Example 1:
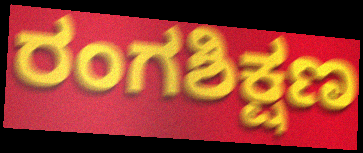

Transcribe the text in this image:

ರಂಗಶಿಕ್ಷಣ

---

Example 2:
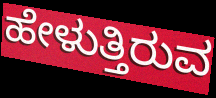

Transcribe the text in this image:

ಹೇಳುತ್ತಿರುವ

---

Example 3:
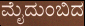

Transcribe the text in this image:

ಮೈದುಂಬಿದ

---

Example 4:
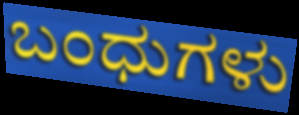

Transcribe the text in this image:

ಬಂಧುಗಳು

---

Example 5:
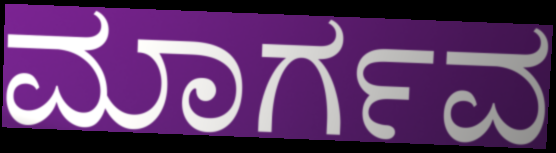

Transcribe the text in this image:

ಮಾರ್ಗವ